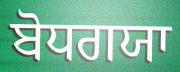
ਬੋਧਗਯਾ